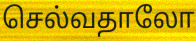
செல்வதாலோ